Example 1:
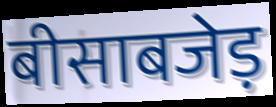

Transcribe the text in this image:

बीसाबजेड़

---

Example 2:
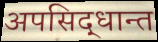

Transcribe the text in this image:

अपसिद्धान्त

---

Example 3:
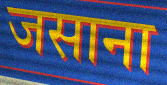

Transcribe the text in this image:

जसाना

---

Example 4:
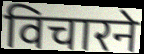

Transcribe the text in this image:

विचारने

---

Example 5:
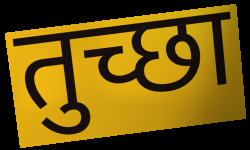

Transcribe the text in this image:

तुच्छा